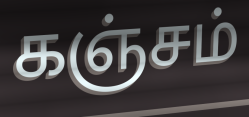
கஞ்சம்